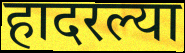
हादरल्या